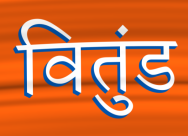
वितुंड